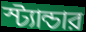
স্ট্যান্ডার